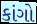
કાંગો